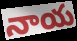
నాయ